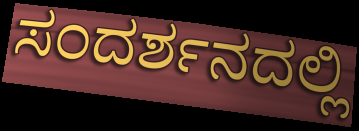
ಸಂದರ್ಶನದಲ್ಲಿ